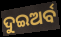
ଦୁଇଅର୍ବ